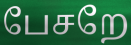
பேசறே